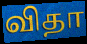
விதா